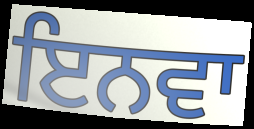
ਇਨਵਾ